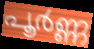
പൂർണ്ണ